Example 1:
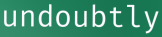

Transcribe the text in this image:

undoubtly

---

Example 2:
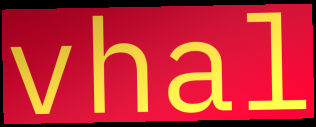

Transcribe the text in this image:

vhal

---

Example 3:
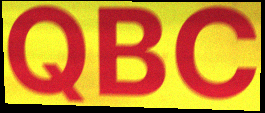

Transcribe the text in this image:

QBC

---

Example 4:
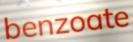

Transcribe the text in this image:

benzoate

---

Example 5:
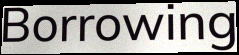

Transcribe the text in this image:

Borrowing